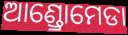
ଆଣ୍ଡ୍ରୋମେଡା